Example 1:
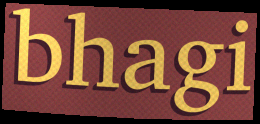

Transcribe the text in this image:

bhagi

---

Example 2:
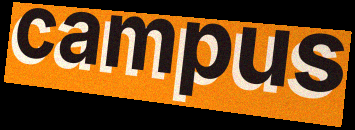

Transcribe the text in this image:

campus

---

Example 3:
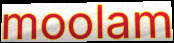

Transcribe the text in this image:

moolam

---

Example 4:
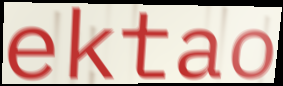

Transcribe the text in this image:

ektao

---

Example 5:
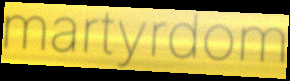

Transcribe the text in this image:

martyrdom